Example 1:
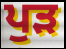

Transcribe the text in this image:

ਪੁੜ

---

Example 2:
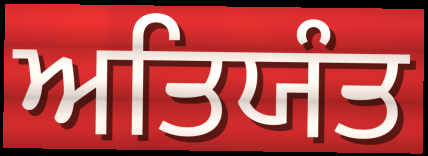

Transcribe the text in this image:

ਅਤਿਯੰਤ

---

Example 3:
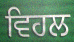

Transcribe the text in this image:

ਵਿਹਲ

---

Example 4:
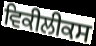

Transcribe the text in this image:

ਵਿਕੀਲੀਕਸ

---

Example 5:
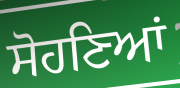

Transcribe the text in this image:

ਸੋਹਣਿਆਂ